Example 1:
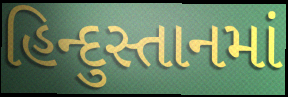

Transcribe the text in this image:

હિન્દુસ્તાનમાં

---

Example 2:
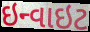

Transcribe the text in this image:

ઇન્વાઇટ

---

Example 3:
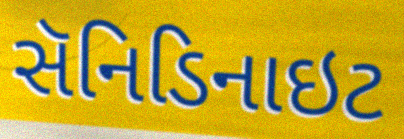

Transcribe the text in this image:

સૅનિડિનાઇટ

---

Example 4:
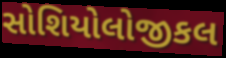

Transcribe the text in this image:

સોશિયોલોજીકલ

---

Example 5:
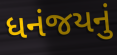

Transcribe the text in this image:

ધનંજયનું